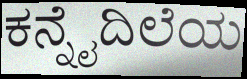
ಕನ್ನೈದಿಲೆಯ